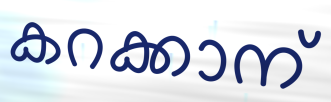
കറക്കാന്